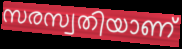
സരസ്വതിയാണ്